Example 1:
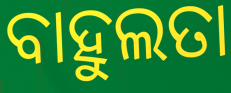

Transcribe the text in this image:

ବାହୁଲତା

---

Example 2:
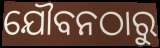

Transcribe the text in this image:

ଯୌବନଠାରୁ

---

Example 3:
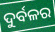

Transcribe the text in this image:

ଦୁର୍ବଳର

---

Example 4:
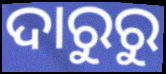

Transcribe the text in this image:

ଦାରୁରୁ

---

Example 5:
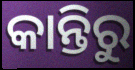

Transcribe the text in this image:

କାନ୍ତିରୁ